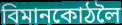
বিমানকোঠলৈ